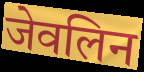
जेवलिन